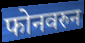
फोनवरुन